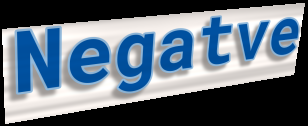
Negatve